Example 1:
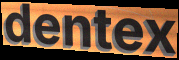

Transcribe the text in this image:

dentex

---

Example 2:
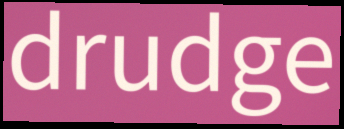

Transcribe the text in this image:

drudge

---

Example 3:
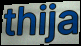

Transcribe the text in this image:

thija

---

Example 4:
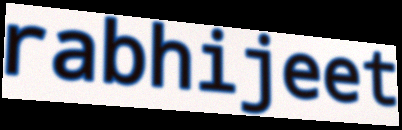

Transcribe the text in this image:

rabhijeet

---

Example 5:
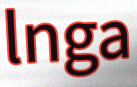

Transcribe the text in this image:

lnga